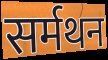
सर्मथन